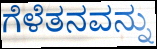
ಗೆಳೆತನವನ್ನು